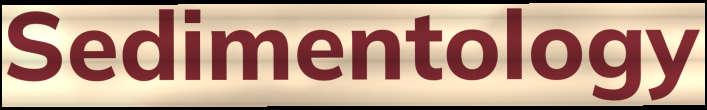
Sedimentology